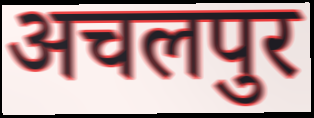
अचलपुर